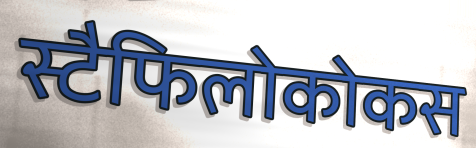
स्टैफिलोकोकस